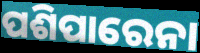
ପଶିପାରେନା